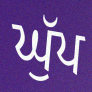
ਘੁੱਪ